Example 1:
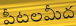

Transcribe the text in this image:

పీటలమీద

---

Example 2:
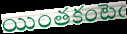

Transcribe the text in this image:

యింతకంటెఁ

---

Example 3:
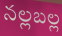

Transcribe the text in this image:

నల్లబల్ల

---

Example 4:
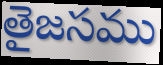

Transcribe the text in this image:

తైజసము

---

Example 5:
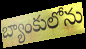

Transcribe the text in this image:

బ్యాంకులోను